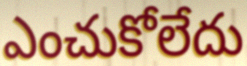
ఎంచుకోలేదు